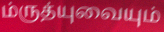
ம்ருத்யுவையும்